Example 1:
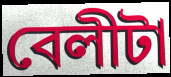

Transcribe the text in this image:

বেলীটা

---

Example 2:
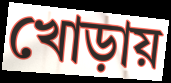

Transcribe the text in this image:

খোড়ায়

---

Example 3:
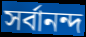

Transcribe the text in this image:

সর্বানন্দ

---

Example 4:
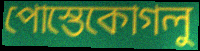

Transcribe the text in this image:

পোস্তেকোগলু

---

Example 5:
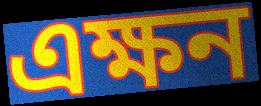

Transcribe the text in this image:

এক্ষন